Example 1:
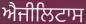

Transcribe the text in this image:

ਐਜੀਲਿਟਾਸ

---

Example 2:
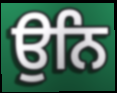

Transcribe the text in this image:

ਉਨਿ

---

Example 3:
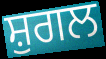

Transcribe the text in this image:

ਸ਼ੁਗਲ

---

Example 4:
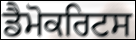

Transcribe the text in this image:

ਡੈਮੋਕਰਿਟਸ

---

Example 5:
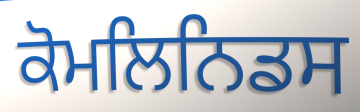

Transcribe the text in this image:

ਕੋਮਲਿਨਿਡਸ